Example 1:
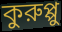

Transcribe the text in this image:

কুরুপ্পু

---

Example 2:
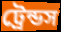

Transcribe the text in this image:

ট্রেন্ডস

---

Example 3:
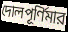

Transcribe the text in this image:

দোলপূর্ণিমার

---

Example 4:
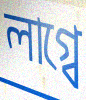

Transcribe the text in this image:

লাগ্বে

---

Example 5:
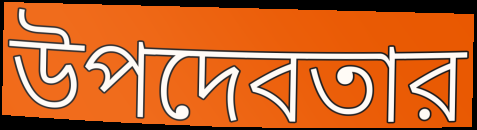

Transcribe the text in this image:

উপদেবতার